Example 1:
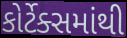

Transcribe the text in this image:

કોર્ટેક્સમાંથી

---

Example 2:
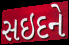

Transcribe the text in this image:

સઇદને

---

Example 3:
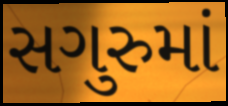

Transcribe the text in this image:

સગુરુમાં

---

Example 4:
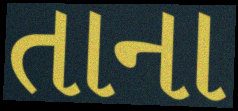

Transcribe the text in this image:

તાના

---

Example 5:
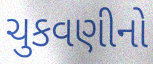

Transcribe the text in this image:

ચુકવણીનો